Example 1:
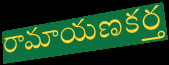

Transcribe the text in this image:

రామాయణకర్త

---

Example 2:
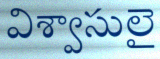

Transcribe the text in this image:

విశ్వాసులై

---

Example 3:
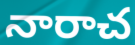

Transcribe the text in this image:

నారాచ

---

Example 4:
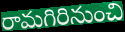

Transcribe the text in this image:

రామగిరినుంచి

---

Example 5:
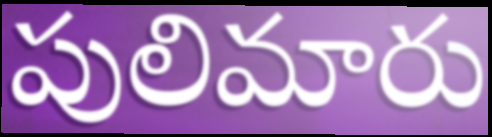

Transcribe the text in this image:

పులిమారు